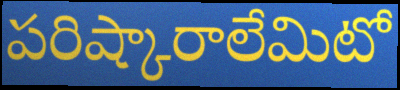
పరిష్కారాలేమిటో